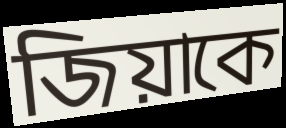
জিয়াকে